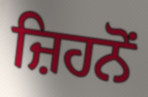
ਜ਼ਿਹਨੋਂ